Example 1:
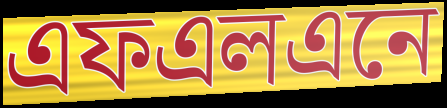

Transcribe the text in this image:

এফএলএনে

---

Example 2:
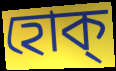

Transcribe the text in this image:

হোক্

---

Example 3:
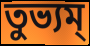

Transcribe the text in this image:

তুভ্যম্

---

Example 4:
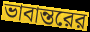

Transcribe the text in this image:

ভাবান্তরের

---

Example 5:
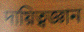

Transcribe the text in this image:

দায়িত্বজ্ঞান